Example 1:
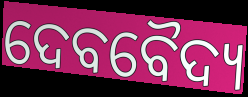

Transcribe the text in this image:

ଦେବବୈଦ୍ୟ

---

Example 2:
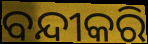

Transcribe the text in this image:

ବନ୍ଦୀକରି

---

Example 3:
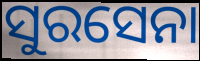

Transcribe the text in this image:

ସୁରସେନା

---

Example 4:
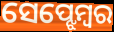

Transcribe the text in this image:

ସେପ୍ଝେମ୍ବର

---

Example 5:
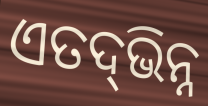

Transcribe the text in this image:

ଏତଦ୍‌ଭିନ୍ନ